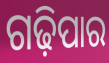
ଗଢ଼ିପାର